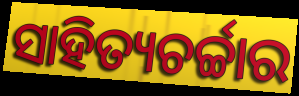
ସାହିତ୍ୟଚର୍ଚ୍ଚାର